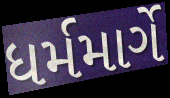
ધર્મમાર્ગે